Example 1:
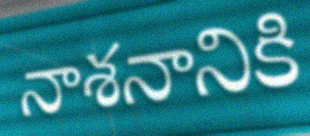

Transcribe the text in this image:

నాశనానికి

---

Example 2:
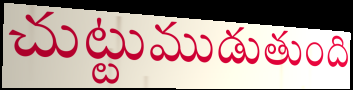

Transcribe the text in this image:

చుట్టుముడుతుంది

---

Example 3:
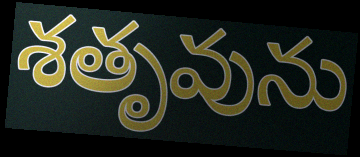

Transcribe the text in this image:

శతృవును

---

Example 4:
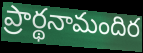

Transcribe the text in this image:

ప్రార్థనామందిర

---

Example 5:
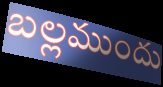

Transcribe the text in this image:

బల్లముందు